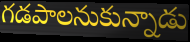
గడపాలనుకున్నాడు